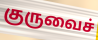
குருவைச்